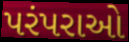
પરંપરાઓ